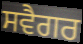
ਸਵੈਗਰ